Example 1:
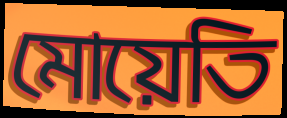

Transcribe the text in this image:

মোয়েতি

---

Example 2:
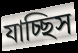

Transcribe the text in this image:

যাচ্ছিস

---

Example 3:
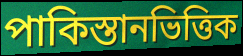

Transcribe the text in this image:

পাকিস্তানভিত্তিক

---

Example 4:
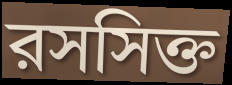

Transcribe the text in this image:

রসসিক্ত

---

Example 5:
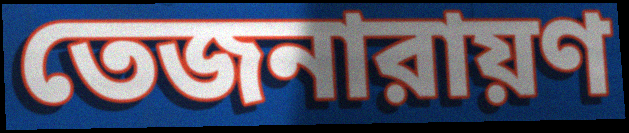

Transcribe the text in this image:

তেজনারায়ণ